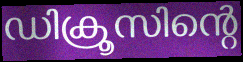
ഡിക്രൂസിന്റെ